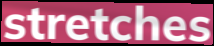
stretches